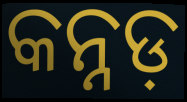
କନ୍ନଡ଼